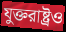
যুক্তরাষ্ট্রও